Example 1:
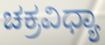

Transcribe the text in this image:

ಚಕ್ರವಿಧ್ಯಾ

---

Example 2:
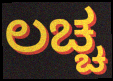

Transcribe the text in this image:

ಲಚ್ಚ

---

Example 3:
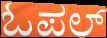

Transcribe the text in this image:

ಓಪಲ್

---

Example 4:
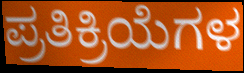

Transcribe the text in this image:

ಪ್ರತಿಕ್ರಿಯೆಗಳ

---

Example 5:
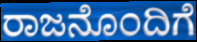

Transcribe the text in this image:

ರಾಜನೊಂದಿಗೆ